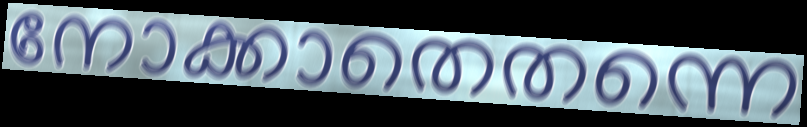
നോക്കാതെതന്നെ